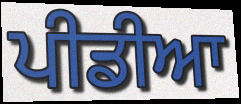
ਪੀਡੀਆ